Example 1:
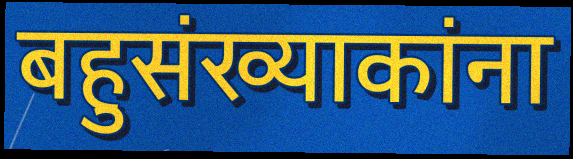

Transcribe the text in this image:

बहुसंख्याकांना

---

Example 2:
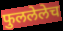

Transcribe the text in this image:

फुललेलेच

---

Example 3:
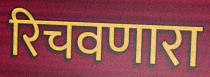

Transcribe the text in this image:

रिचवणारा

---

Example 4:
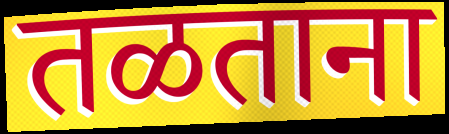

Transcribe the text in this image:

तळताना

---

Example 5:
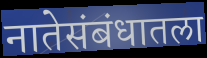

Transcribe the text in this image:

नातेसंबंधातला